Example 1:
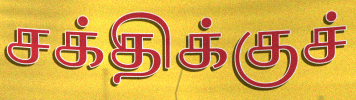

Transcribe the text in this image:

சக்திக்குச்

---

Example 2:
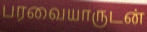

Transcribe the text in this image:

பரவையாருடன்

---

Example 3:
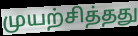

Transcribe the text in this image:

முயற்சித்தது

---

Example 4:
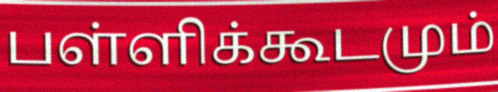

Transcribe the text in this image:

பள்ளிக்கூடமும்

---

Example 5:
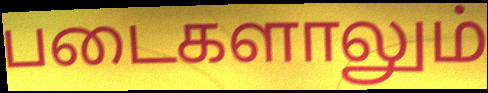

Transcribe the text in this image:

படைகளாலும்